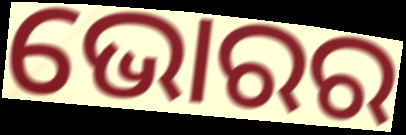
ଭୋରର